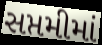
સપ્તમીમાં